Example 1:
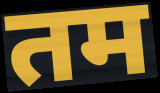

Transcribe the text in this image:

तम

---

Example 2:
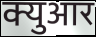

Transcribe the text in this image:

क्युआर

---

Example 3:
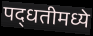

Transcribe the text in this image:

पद्धतीमध्ये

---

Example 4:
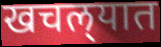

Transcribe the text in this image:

खचल्यात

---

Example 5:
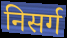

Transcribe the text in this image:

निसर्ग